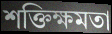
শক্তিক্ষমতা